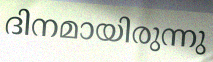
ദിനമായിരുന്നു